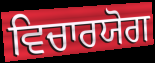
ਵਿਚਾਰਯੋਗ